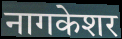
नागकेशर